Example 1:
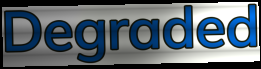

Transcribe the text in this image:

Degraded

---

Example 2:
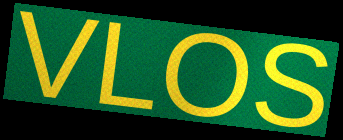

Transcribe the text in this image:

VLOS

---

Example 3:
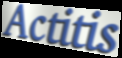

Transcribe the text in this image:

Actitis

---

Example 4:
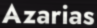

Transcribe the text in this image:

Azarias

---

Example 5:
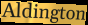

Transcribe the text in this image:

Aldington